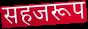
सहजरूप